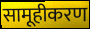
सामूहीकरण